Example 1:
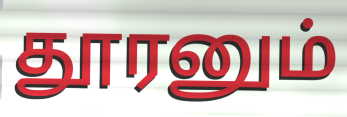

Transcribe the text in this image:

தூரனும்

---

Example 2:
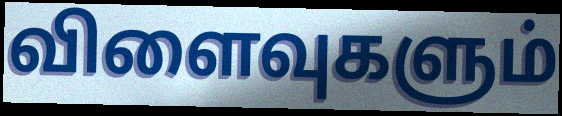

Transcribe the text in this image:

விளைவுகளும்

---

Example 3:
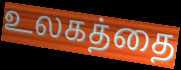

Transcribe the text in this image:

உலகத்தை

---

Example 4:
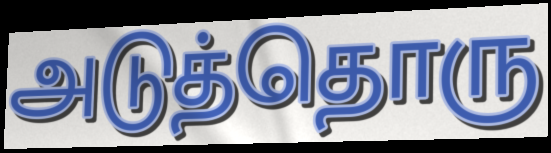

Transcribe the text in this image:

அடுத்தொரு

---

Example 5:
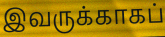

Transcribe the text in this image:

இவருக்காகப்